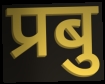
प्रबु